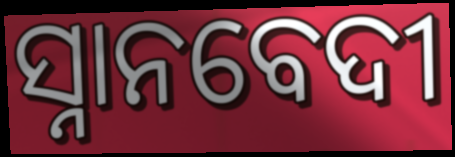
ସ୍ନାନବେଦୀ